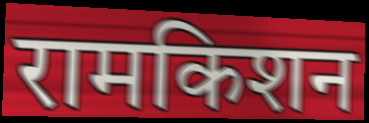
रामकिशन